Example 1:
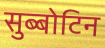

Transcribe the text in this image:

सुब्बोटिन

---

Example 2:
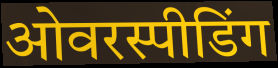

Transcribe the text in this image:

ओवरस्पीडिंग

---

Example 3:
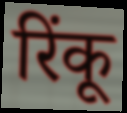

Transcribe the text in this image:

रिंकू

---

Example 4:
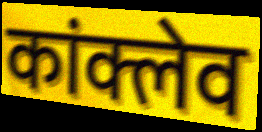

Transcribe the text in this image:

कांक्लेव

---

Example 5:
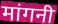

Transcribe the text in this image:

मांगनी